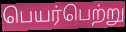
பெயர்பெற்று